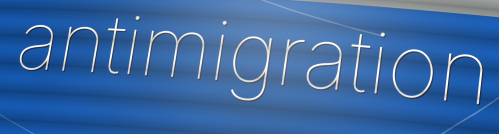
antimigration